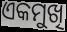
ଏକମୁଖି